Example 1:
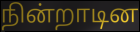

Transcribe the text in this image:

நின்றாடின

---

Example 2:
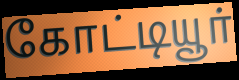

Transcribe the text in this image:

கோட்டியூர்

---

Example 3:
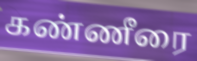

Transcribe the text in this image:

கண்ணீரை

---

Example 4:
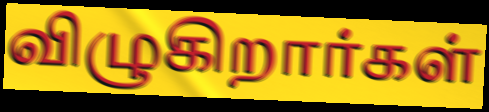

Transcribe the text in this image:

விழுகிறார்கள்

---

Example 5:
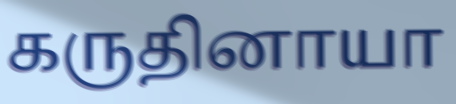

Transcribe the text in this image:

கருதினாயா